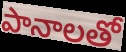
పానాలతో